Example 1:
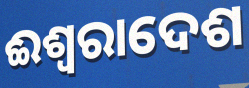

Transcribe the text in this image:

ଈଶ୍ୱରାଦେଶ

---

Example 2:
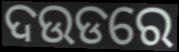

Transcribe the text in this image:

ଦଉଡରେ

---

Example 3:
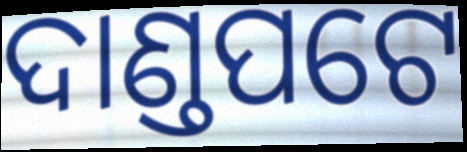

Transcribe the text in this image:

ଦାଣ୍ଡପଟେ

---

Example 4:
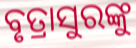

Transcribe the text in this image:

ବୃତ୍ରାସୁରଙ୍କୁ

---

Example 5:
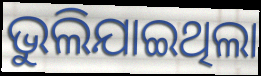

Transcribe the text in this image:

ଭୁଲିଯାଇଥିଲା